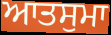
ਆਤਸੁਮਾ